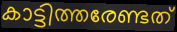
കാട്ടിത്തരേണ്ടത്